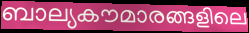
ബാല്യകൗമാരങ്ങളിലെ